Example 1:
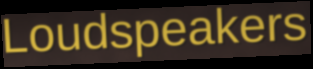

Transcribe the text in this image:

Loudspeakers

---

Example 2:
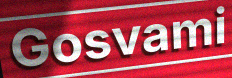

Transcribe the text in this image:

Gosvami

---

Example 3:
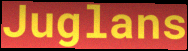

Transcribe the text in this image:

Juglans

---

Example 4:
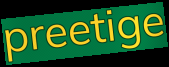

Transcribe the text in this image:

preetige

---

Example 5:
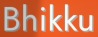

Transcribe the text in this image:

Bhikku